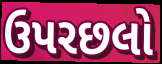
ઉપરછલો